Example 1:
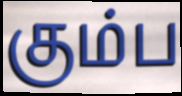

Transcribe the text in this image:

கும்ப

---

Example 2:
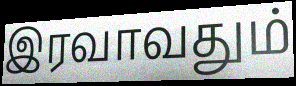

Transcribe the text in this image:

இரவாவதும்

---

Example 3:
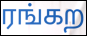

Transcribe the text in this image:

ரங்கற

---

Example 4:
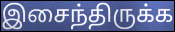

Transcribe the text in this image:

இசைந்திருக்க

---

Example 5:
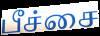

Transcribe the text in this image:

பீச்சை